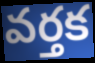
వర్తక